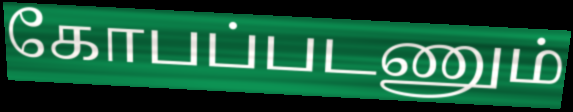
கோபப்படணும்